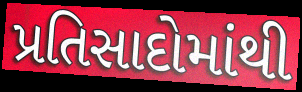
પ્રતિસાદોમાંથી